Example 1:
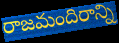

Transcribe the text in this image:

రాజమందిరాన్ని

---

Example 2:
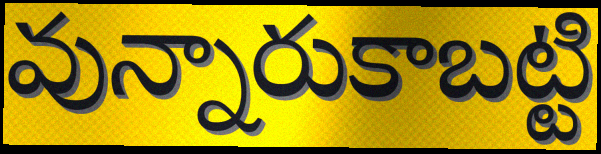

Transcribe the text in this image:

వున్నారుకాబట్టి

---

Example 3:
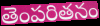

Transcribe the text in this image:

తెంపరితనం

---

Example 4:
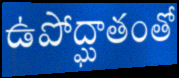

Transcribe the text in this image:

ఉపోద్ఘాతంతో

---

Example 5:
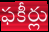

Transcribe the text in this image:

ఫకీర్లు